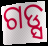
ଗଡ୍ସ